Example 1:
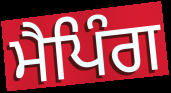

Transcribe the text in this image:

ਮੈਪਿੰਗ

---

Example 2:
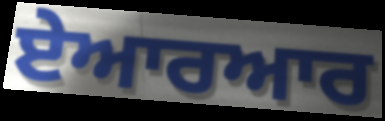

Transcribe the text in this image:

ਏਆਰਆਰ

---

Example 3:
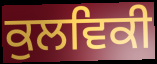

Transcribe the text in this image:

ਕੁਲਵਿਕੀ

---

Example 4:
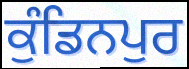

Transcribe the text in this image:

ਕੁੰਡਿਨਪੁਰ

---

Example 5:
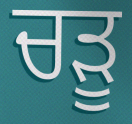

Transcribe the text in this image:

ਚੜੂ